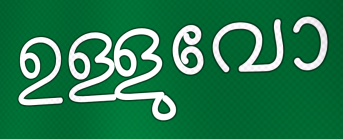
ഉള്ളുവോ